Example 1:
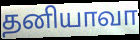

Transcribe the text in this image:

தனியாவா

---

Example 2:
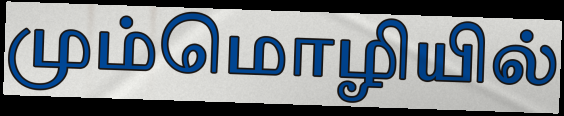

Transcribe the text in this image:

மும்மொழியில்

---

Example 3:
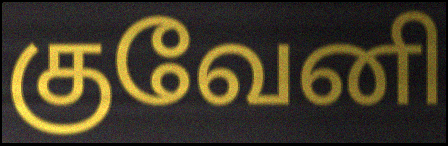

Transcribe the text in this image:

குவேனி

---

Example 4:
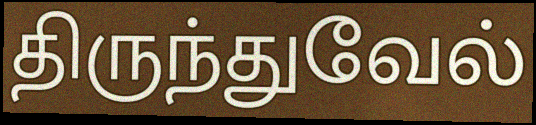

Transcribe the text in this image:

திருந்துவேல்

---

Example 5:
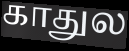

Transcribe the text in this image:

காதுல